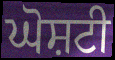
ਘੋਸ਼ਟੀ